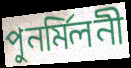
পুনর্মিলনী